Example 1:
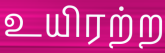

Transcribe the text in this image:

உயிரற்ற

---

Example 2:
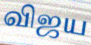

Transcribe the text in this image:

விஜய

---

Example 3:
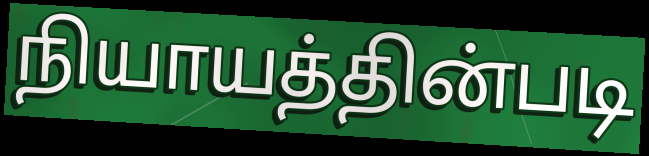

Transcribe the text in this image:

நியாயத்தின்படி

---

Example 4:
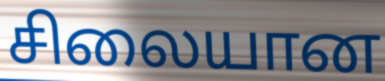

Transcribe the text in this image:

சிலையான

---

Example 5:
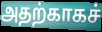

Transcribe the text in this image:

அதற்காகச்